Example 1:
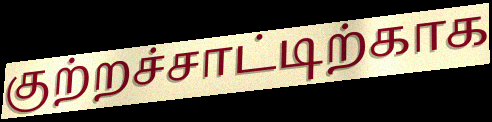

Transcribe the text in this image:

குற்றச்சாட்டிற்காக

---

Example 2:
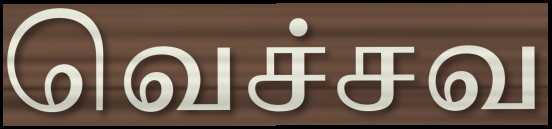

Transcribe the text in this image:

வெச்சவ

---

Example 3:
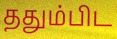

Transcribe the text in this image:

ததும்பிட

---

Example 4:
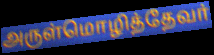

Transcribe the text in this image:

அருள்மொழித்தேவர்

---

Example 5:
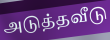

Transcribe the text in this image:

அடுத்தவீடு